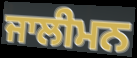
ਜਾਲੀਮਨ